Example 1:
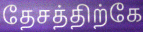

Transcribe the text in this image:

தேசத்திற்கே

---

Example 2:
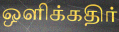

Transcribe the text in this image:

ஒளிக்கதிர்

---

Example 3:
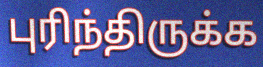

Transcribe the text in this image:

புரிந்திருக்க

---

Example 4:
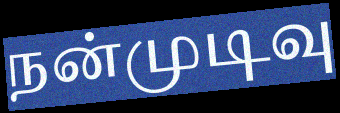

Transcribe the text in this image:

நன்முடிவு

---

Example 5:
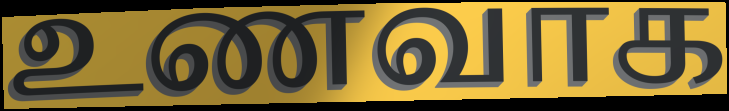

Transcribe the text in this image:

உணவாக